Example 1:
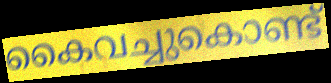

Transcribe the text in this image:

കൈവച്ചുകൊണ്ട്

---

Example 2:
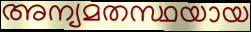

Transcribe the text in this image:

അന്യമതസ്ഥയായ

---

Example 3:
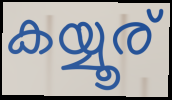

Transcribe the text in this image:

കയ്യൂര്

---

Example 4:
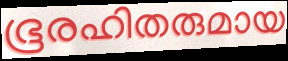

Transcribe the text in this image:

ഭൂരഹിതരുമായ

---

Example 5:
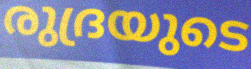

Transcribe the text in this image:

രുദ്രയുടെ